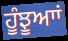
ਹੂੰਝੂਆਾਂ